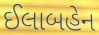
ઈલાબહેન